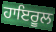
ਹਾਇਰੂਲ